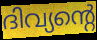
ദിവ്യന്റെ